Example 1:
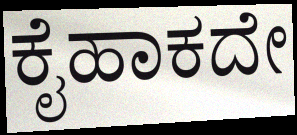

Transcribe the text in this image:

ಕೈಹಾಕದೇ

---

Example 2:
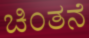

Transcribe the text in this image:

ಚಿಂತನೆ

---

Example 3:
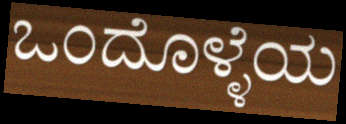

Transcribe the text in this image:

ಒಂದೊಳ್ಳೆಯ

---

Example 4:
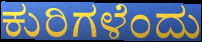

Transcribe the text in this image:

ಕುರಿಗಳೆಂದು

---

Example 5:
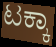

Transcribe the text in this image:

ಟಕ್ಕಾ